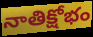
నాతిక్షోభం